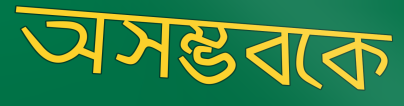
অসম্ভবকে